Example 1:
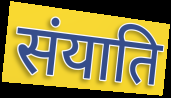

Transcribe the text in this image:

संयाति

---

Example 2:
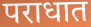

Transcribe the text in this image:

पराधात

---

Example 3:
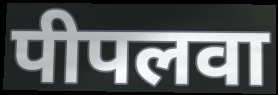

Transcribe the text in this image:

पीपलवा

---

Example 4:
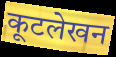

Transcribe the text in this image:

कूटलेखन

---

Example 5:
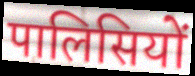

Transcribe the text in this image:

पालिसियों